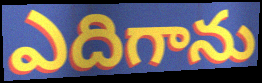
ఎదిగాను